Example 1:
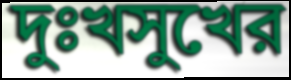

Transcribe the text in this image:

দুঃখসুখের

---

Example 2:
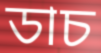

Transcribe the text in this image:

ডাচ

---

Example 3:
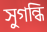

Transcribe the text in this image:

সুগন্ধি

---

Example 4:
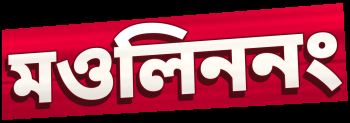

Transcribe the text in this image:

মওলিননং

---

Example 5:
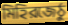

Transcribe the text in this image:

মিহিরজেঠু